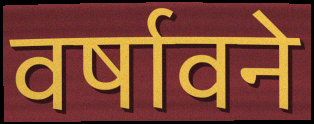
वर्षावने